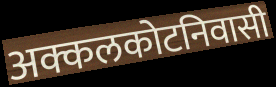
अक्कलकोटनिवासी